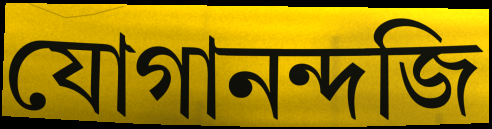
যোগানন্দজি